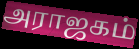
அராஜகம்